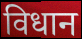
विधान